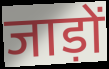
जाड़ों